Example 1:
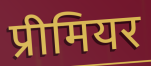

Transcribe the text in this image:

प्रीमियर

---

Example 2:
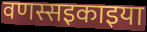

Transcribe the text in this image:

वणस्सइकाइया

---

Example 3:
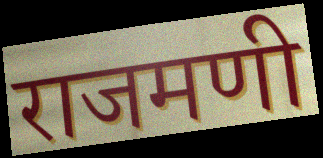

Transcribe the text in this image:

राजमणी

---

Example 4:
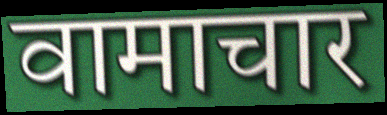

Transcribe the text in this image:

वामाचार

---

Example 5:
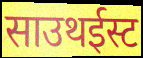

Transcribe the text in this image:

साउथईस्ट